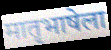
मातृभाषेला